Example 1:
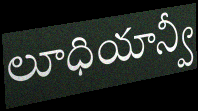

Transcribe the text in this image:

లూధియాన్వీ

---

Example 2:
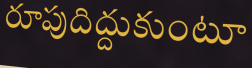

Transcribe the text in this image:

రూపుదిద్దుకుంటూ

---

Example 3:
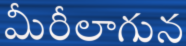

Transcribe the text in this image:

మీరీలాగున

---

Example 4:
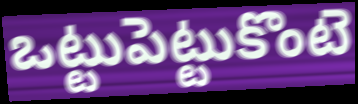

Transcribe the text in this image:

ఒట్టుపెట్టుకొంటె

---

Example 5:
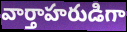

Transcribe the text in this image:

వార్తాహరుడిగా